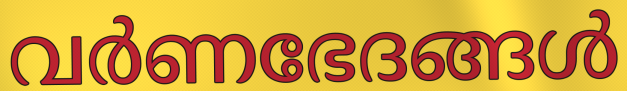
വർണഭേദങ്ങൾ